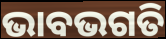
ଭାବଭଗତି